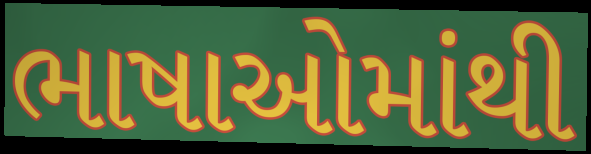
ભાષાઓમાંથી